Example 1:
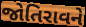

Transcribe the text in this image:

જોતિરાવને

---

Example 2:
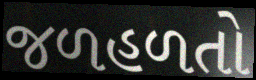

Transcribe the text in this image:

જળહળતો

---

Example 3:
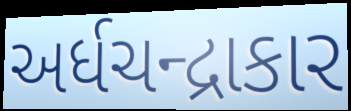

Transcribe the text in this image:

અર્ધચન્દ્રાકાર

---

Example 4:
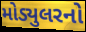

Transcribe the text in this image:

મોડ્યુલરનો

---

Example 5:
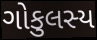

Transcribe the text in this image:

ગોકુલસ્ય